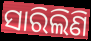
ସାରିଲିଣି